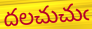
దలచుచుఁ